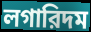
লগারিদম